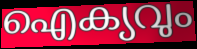
ഐക്യവും